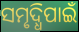
ସମୃଦ୍ଧିପାଇଁ